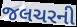
જલચરની